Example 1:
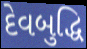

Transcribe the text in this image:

દેવબુદ્ધિ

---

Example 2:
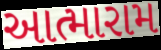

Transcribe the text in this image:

આત્મારામ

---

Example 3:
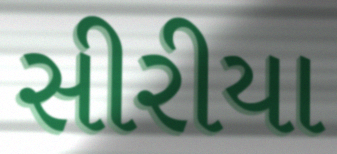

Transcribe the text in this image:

સીરીયા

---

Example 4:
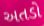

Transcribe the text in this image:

અતડો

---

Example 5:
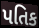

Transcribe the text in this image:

પતિક